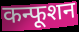
कन्फूशन